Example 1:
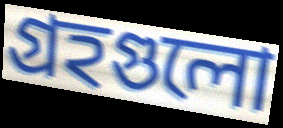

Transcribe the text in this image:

গ্রহগুলো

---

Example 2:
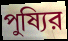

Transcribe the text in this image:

পুষ্যির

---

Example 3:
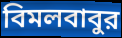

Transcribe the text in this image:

বিমলবাবুর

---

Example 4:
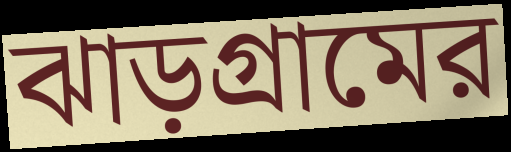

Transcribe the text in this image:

ঝাড়গ্রামের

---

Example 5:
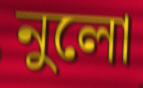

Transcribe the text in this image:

নুলো